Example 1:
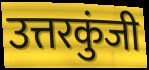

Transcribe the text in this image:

उत्तरकुंजी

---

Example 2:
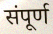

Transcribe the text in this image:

संपूर्ण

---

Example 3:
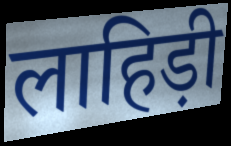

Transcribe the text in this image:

लाहिड़ी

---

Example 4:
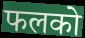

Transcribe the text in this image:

फलको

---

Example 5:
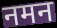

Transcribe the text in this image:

नमन